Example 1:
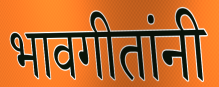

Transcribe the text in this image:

भावगीतांनी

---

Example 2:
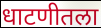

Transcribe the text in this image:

धाटणीतला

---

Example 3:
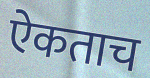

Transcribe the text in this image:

ऐकताच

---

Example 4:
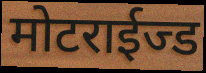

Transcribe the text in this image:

मोटराईज्ड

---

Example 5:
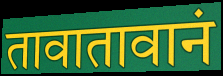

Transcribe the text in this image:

तावातावानं